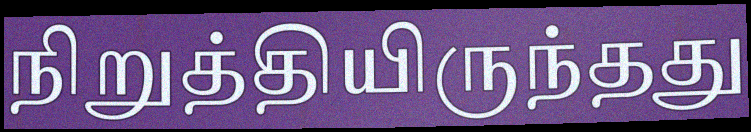
நிறுத்தியிருந்தது